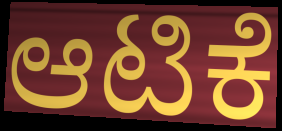
ಆಟಿಕೆ